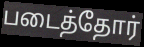
படைத்தோர்